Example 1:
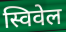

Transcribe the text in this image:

स्विवेल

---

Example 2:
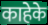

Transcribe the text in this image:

काहेके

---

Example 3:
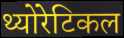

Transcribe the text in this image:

थ्योरेटिकल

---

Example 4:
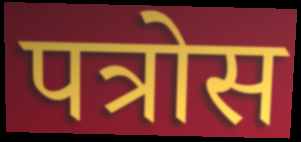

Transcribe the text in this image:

पत्रोस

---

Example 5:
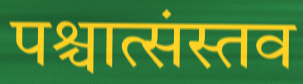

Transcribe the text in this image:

पश्चात्संस्तव